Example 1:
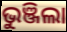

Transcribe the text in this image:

ଭୁଞ୍ଜିଲା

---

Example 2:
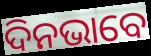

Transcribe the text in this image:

ଦିନଭାବେ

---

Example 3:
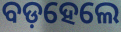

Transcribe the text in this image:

ବଡ଼ହେଲେ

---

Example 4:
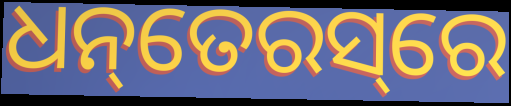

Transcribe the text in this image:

ଧନ୍‌ତେରସ୍‌ରେ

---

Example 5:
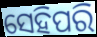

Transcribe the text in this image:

ସେହିପରି